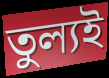
তুল্যই